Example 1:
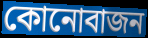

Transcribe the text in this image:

কোনোবাজন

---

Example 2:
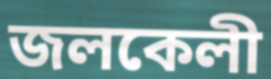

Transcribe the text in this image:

জলকেলী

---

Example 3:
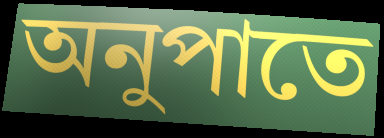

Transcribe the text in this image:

অনুপাতে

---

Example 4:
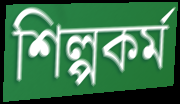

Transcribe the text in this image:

শিল্পকৰ্ম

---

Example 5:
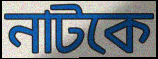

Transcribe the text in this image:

নাটকে